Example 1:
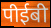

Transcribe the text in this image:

पीईबी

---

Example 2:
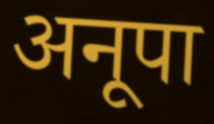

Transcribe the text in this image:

अनूपा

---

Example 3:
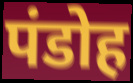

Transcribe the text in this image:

पंडोह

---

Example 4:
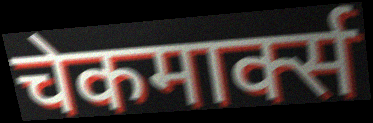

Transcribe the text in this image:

चेकमार्क्स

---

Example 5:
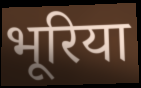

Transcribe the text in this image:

भूरिया